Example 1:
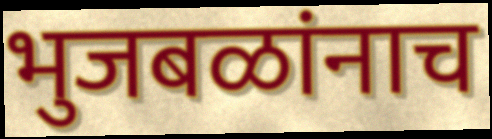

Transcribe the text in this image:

भुजबळांनाच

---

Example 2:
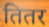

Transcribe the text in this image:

तितर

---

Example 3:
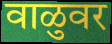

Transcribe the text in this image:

वाळुवर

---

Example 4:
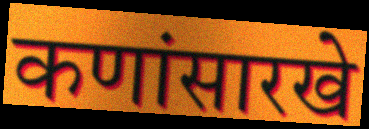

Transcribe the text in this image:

कणांसारखे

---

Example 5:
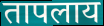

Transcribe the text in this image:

तापलाय